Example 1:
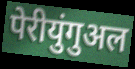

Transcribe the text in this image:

पेरीयुंगुअल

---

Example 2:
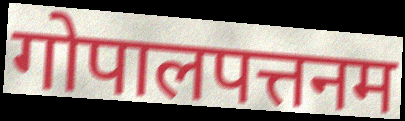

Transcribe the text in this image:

गोपालपत्तनम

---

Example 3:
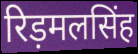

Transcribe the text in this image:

रिड़मलसिंह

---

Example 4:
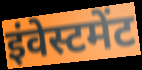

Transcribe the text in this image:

इंवेस्टमेंट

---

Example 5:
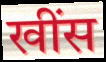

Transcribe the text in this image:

खींस